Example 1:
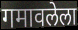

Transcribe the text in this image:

गमावलेला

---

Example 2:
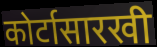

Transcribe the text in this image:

कोर्टासारखी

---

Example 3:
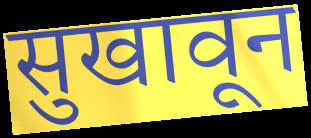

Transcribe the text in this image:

सुखावून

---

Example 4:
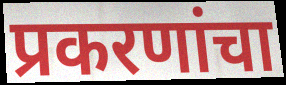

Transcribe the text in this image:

प्रकरणांचा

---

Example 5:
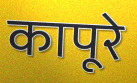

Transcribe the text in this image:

कापूरे